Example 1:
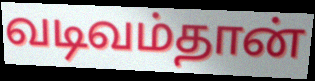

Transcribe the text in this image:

வடிவம்தான்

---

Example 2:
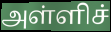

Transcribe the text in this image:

அள்ளிச்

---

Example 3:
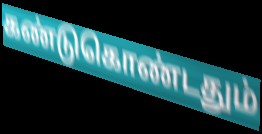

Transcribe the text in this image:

கண்டுகொண்டதும்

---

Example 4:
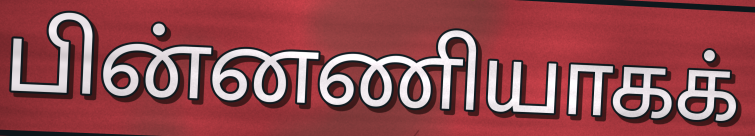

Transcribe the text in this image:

பின்னணியாகக்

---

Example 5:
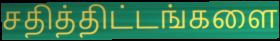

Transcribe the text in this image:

சதித்திட்டங்களை